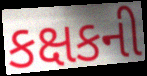
કક્ષકની